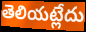
తెలియట్లేదు